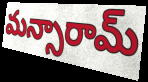
మన్సారామ్